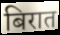
बिरात